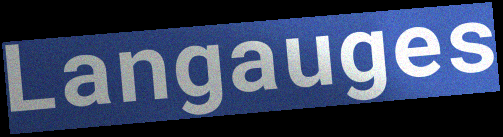
Langauges